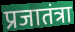
प्रजातंत्रा